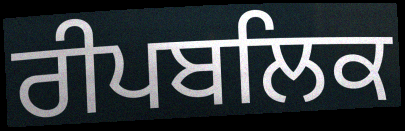
ਰੀਪਬਲਿਕ